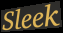
Sleek